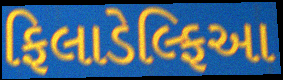
ફિલાડેલ્ફિઆ